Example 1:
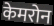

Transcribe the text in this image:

केमरोन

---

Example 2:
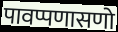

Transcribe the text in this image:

पावप्पणासणो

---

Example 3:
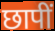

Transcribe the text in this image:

छापीं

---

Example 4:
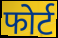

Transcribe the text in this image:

फोर्ट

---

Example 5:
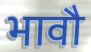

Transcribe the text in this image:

भावौ